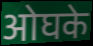
ओघके